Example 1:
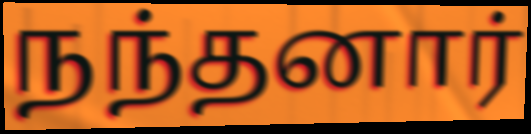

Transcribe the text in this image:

நந்தனார்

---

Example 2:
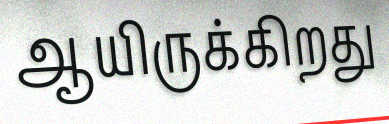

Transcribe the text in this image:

ஆயிருக்கிறது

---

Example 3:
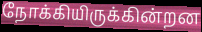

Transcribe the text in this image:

நோக்கியிருக்கின்றன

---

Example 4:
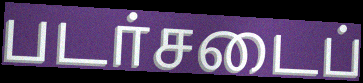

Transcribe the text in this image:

படர்சடைப்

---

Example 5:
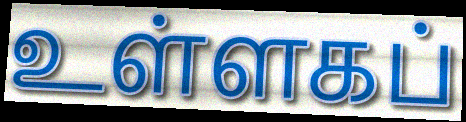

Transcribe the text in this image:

உள்ளகப்